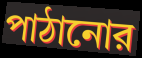
পাঠানোর